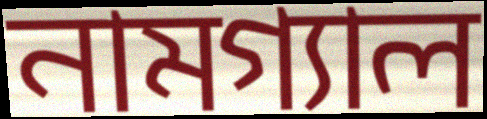
নামগ্যাল